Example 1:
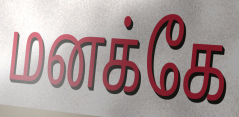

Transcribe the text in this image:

மனக்கே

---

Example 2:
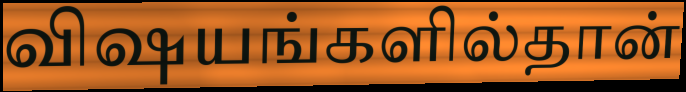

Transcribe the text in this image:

விஷயங்களில்தான்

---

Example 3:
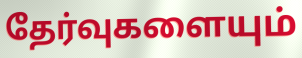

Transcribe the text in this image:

தேர்வுகளையும்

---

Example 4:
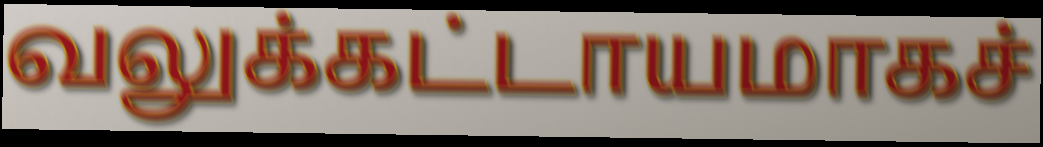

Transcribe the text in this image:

வலுக்கட்டாயமாகச்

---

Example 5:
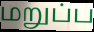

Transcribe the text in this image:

மறுப்ப